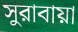
সুরাবায়া